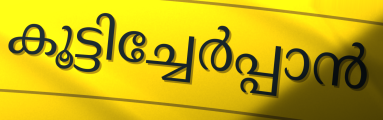
കൂട്ടിച്ചേർപ്പാൻ